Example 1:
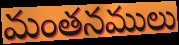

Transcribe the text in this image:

మంతనములు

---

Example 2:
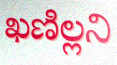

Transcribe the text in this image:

ఖణిల్లని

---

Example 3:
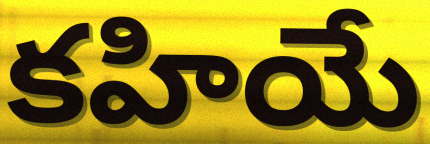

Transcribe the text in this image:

కహియే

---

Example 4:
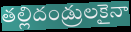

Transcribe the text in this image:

తల్లిదండ్రులకైనా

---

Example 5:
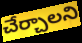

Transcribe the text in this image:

చేర్చాలని